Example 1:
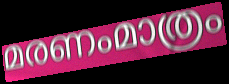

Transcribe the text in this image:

മരണംമാത്രം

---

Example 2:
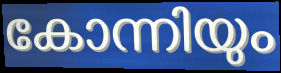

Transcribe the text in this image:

കോന്നിയും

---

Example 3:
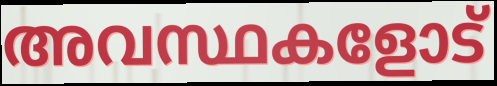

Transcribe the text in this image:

അവസ്ഥകളോട്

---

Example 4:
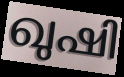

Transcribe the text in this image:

ഖുഷി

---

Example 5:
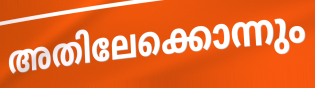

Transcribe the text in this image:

അതിലേക്കൊന്നും